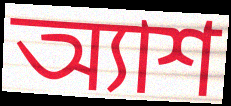
অ্যাশ